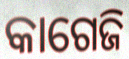
କାଗେଜି